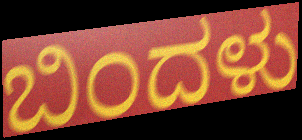
ಬಿಂದಳು